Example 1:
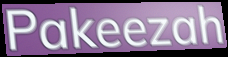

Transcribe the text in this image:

Pakeezah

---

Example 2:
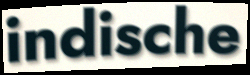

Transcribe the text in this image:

indische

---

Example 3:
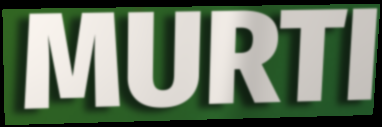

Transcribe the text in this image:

MURTI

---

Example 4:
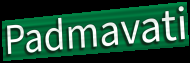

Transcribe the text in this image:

Padmavati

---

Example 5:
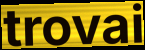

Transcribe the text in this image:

trovai